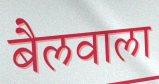
बैलवाला